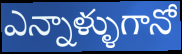
ఎన్నాళ్ళుగానో